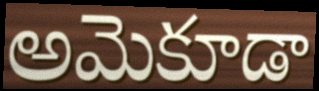
అమెకూడా